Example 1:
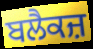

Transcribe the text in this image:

ਬਲੈਕਜ਼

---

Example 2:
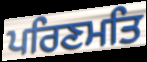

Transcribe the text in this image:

ਪਰਿਣਮਤਿ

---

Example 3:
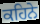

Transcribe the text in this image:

ਕਹਿਨੇ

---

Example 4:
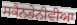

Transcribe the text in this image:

ਸਕੈਨਡੇਨੀਵੀਆ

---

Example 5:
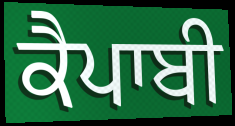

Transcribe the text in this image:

ਕੈਪਾਬੀ